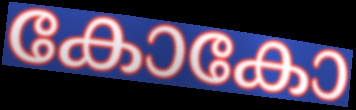
കോകോ